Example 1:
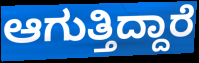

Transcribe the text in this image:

ಆಗುತ್ತಿದ್ದಾರೆ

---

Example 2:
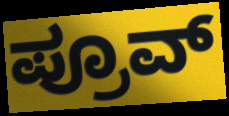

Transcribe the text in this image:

ಪ್ರೂವ್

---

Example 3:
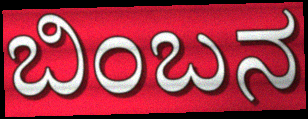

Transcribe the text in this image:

ಬಿಂಬನ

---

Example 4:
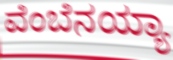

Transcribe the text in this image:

ವೆಂಬೆನಯ್ಯಾ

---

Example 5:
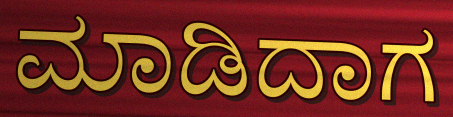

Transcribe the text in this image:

ಮಾಡಿದಾಗ